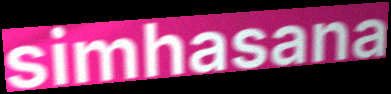
simhasana